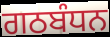
ਗਠਬੰਧਨ